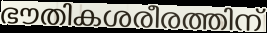
ഭൗതികശരീരത്തിന്